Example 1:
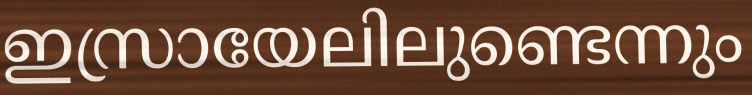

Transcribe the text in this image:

ഇസ്രായേലിലുണ്ടെന്നും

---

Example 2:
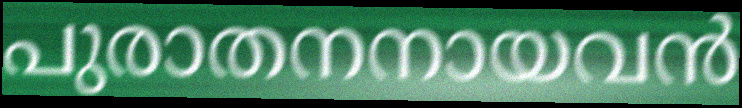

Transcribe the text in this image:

പുരാതനനായവൻ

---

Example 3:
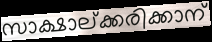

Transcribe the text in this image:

സാക്ഷാല്ക്കരിക്കാന്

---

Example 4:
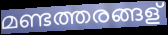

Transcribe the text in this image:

മണ്ടത്തരങ്ങള്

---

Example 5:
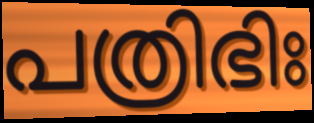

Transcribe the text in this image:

പത്രിഭിഃ